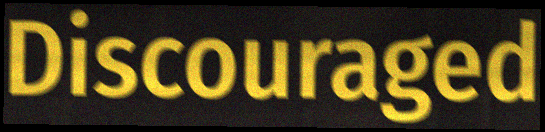
Discouraged